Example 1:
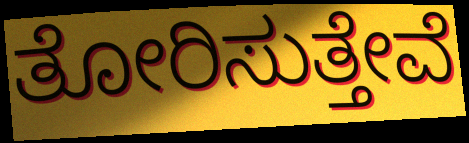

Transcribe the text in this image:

ತೋರಿಸುತ್ತೇವೆ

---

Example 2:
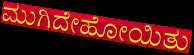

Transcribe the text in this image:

ಮುಗಿದೇಹೋಯಿತು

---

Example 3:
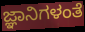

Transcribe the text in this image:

ಜ್ಞಾನಿಗಳಂತೆ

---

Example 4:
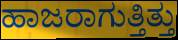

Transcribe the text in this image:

ಹಾಜರಾಗುತ್ತಿತ್ತು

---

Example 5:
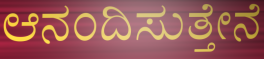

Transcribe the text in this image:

ಆನಂದಿಸುತ್ತೇನೆ